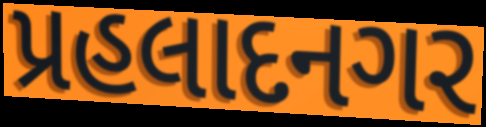
પ્રહલાદનગર